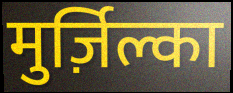
मुर्ज़िल्का